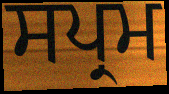
ਸਪ੍ਰਮ